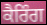
ਕੈਰਿੰਗ